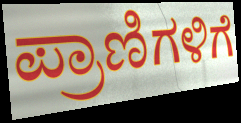
ಪ್ರಾಣಿಗಳಿಗೆ